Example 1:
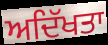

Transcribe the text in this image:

ਅਦਿੱਖਤਾ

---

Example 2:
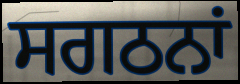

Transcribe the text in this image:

ਸਗਠਨਾਂ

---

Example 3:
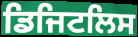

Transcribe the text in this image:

ਡਿਜਿਟਲਿਸ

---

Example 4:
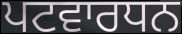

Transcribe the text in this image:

ਪਟਵਾਰਧਨ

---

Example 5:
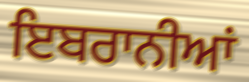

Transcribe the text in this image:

ਇਬਰਾਨੀਆਂ